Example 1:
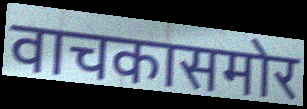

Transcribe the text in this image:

वाचकासमोर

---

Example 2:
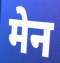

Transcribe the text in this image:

मेन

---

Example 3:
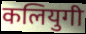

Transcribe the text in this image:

कलियुगी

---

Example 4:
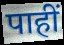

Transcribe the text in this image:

पाहीं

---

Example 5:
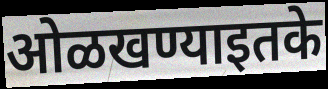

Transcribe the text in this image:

ओळखण्याइतके